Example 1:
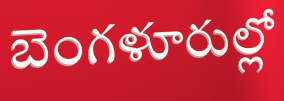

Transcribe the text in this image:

బెంగళూరుల్లో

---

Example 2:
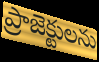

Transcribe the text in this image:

ప్రాజెక్టులను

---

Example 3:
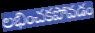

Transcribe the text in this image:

లభించకపోవడం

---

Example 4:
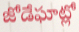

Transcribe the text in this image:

జోడేఘాట్లో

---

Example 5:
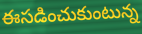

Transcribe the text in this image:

ఈసడించుకుంటున్న